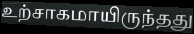
உற்சாகமாயிருந்தது